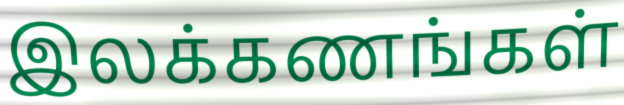
இலக்கணங்கள்